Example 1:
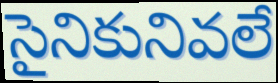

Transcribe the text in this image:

సైనికునివలే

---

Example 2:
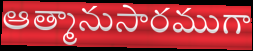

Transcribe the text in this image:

ఆత్మానుసారముగా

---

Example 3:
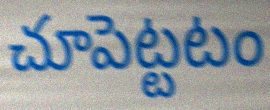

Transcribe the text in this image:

చూపెట్టటం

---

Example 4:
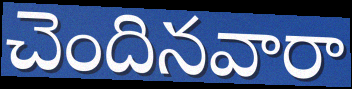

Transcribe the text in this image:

చెందినవారా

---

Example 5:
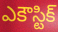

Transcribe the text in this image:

ఎకౌస్టిక్